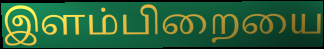
இளம்பிறையை